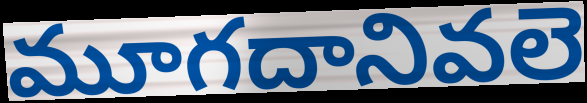
మూగదానివలె